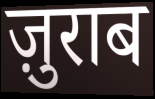
ज़ुराब